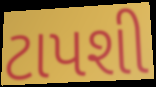
ટાપશી